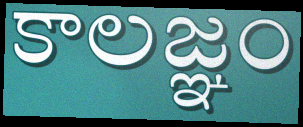
కాలజ్ఞం